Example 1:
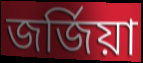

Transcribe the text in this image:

জৰ্জিয়া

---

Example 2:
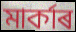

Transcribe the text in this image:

মাৰ্কাৰ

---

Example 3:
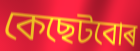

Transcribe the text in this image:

কেছেটবোৰ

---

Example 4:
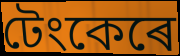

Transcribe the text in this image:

টেংকেৰে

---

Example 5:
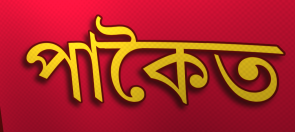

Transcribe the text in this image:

পাকৈত